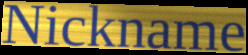
Nickname